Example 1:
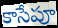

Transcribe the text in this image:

కాసేపూ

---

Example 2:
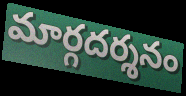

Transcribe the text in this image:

మార్గదర్శనం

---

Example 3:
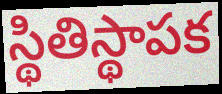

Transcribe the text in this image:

స్థితిస్థాపక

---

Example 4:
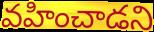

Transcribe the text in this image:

వహించాడని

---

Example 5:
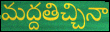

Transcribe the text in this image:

మద్దతిచ్చినా